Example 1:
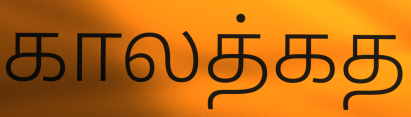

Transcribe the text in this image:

காலத்கத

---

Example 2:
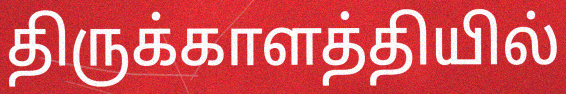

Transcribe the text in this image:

திருக்காளத்தியில்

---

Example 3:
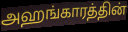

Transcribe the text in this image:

அஹங்காரத்தின்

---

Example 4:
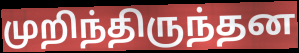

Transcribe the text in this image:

முறிந்திருந்தன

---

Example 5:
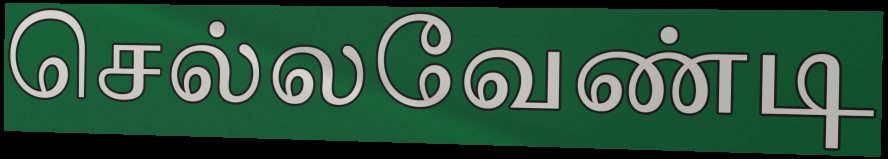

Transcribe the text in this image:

செல்லவேண்டி